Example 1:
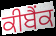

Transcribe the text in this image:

ਕੀਬੈਂਕ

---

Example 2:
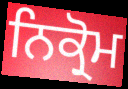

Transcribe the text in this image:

ਨਿਕ੍ਰੋਮ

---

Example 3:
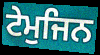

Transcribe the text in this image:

ਟੇਮੁਜਿਨ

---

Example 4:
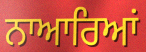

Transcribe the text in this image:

ਨਾਆਰਿਆਂ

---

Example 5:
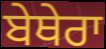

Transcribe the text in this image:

ਬੇਥੇਰਾ